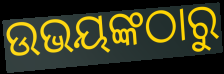
ଉଭୟଙ୍କଠାରୁ